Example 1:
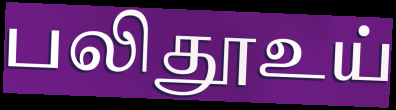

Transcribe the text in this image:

பலிதூஉய்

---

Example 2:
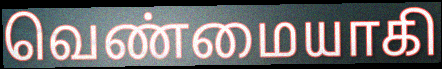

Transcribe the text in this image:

வெண்மையாகி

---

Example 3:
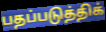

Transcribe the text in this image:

பதப்படுத்திக்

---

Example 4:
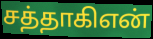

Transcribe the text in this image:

சத்தாகிஎன்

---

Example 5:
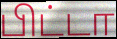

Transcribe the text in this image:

பிட்டா